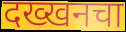
दख्खनचा